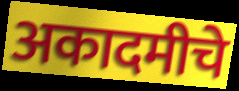
अकादमीचे